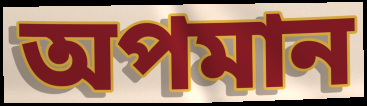
অপমান